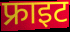
फ्राइट